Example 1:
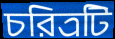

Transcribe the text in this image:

চরিত্রটি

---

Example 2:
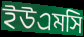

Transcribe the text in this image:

ইউএমসি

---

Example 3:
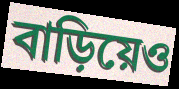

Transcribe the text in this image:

বাড়িয়েও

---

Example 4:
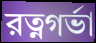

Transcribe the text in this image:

রত্নগর্ভা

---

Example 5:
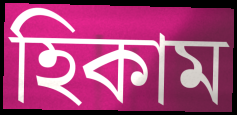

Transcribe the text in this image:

হিকাম